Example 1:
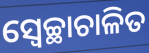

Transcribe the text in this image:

ସ୍ୱେଚ୍ଛାଚାଳିତ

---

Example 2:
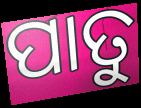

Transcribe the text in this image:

ପାତୁ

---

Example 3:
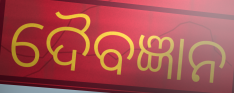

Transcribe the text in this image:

ଦୈବଜ୍ଞାନ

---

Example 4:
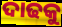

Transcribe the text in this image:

ଦାଢକୁ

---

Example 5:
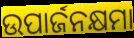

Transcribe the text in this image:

ଉପାର୍ଜନକ୍ଷମା